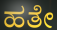
ಹತೇ